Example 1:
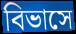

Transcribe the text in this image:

বিভাসে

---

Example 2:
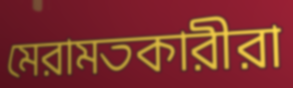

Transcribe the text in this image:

মেরামতকারীরা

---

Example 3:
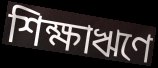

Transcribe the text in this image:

শিক্ষাঋণে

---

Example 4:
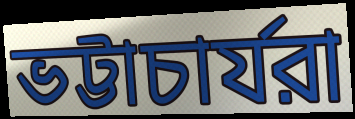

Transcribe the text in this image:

ভট্টাচার্যরা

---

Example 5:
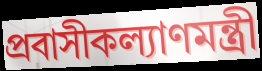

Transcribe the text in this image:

প্রবাসীকল্যাণমন্ত্রী